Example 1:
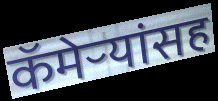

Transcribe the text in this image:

कॅमेऱ्यांसह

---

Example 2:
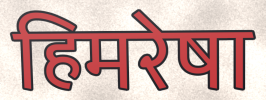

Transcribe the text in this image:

हिमरेषा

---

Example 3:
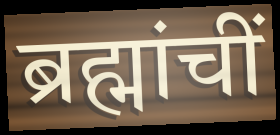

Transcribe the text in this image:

ब्रह्मांचीं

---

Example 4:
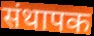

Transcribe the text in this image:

संथापक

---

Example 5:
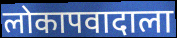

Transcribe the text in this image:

लोकापवादाला